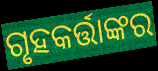
ଗୃହକର୍ତ୍ତାଙ୍କର